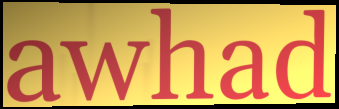
awhad